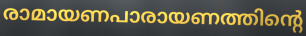
രാമായണപാരായണത്തിന്റെ